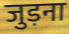
जुड़ना